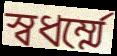
স্বধর্ম্মে